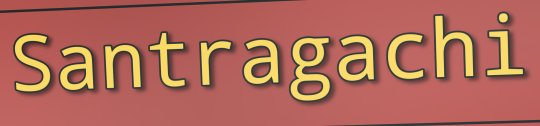
Santragachi